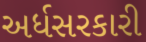
અર્ધસરકારી